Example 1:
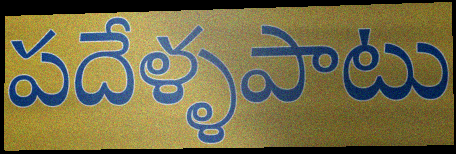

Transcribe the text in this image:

పదేళ్ళపాటు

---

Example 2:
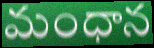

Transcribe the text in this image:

మంధాన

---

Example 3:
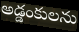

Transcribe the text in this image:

అడ్డంకులను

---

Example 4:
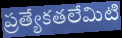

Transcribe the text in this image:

ప్రత్యేకతలేమిటి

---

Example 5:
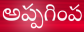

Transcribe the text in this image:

అప్పగింప